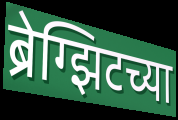
ब्रेग्झिटच्या